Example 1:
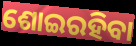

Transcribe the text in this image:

ଶୋଇରହିବା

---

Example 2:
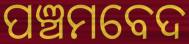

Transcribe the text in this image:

ପଞ୍ଚମବେଦ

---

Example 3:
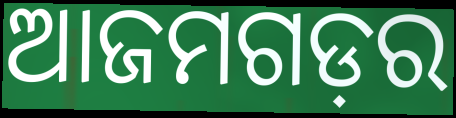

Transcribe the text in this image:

ଆଜମଗଡ଼ର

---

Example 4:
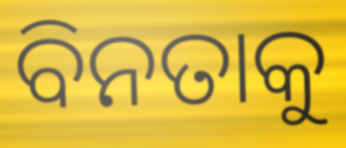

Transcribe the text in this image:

ବିନତାକୁ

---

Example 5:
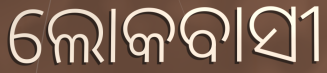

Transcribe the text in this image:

ଲୋକବାସୀ